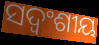
ସଦ୍ବଂଶୀୟ